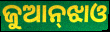
ଜୁଆନ୍‌ଝାଓ